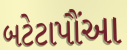
બટેટાપૌંઆ